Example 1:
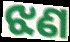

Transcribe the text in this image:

ଝଣ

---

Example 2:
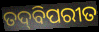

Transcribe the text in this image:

ତଦ୍‍ବିପରୀତ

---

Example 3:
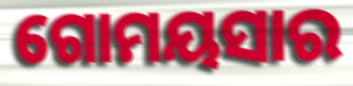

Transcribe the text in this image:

ଗୋମୟସାର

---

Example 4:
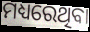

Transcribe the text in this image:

ମଧ୍ୟରେଥିବା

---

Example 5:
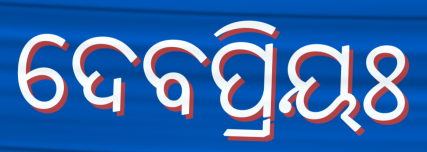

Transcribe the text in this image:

ଦେବପ୍ରିୟଃ